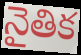
నైతిక